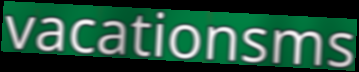
vacationsms